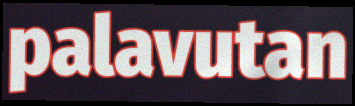
palavutan